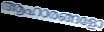
ആഹാരങ്ങളോ